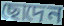
ছোদেন